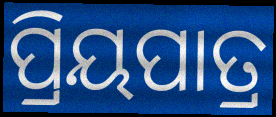
ପ୍ରିୟପାତ୍ର